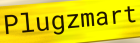
Plugzmart